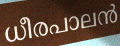
ധീരപാലൻ